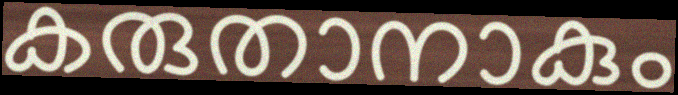
കരുതാനാകും